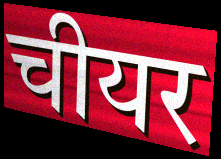
चीयर